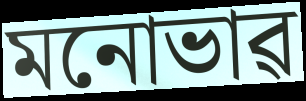
মনোভাৱ